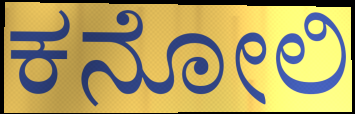
ಕನೋಲಿ